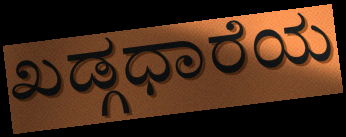
ಖಡ್ಗಧಾರೆಯ